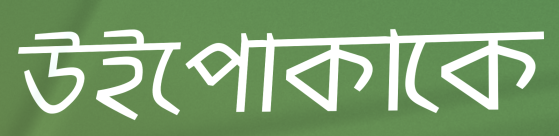
উইপোকাকে